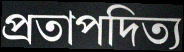
প্ৰতাপদিত্য